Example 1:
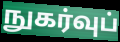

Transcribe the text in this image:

நுகர்வுப்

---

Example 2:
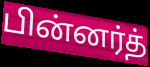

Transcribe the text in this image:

பின்னர்த்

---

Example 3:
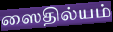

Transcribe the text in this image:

ஸைதில்யம்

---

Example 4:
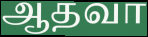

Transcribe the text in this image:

ஆதவா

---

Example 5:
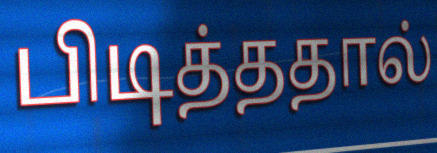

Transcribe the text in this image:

பிடித்ததால்